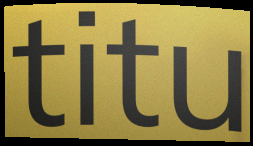
titu